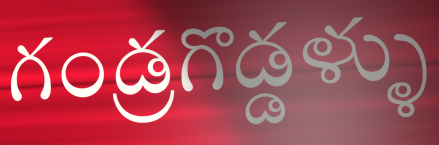
గండ్రగొడ్డళ్ళు